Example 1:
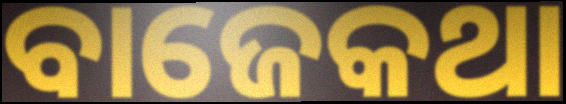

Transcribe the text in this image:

ବାଜେକଥା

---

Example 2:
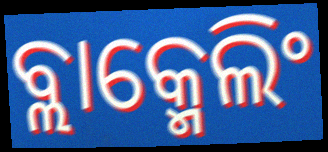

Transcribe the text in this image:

ବ୍ଲାକ୍ମେଲିଂ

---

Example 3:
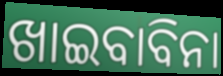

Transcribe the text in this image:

ଖାଇବାବିନା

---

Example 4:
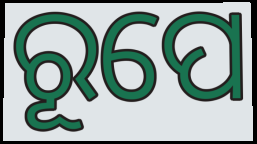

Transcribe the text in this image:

ରୂପେ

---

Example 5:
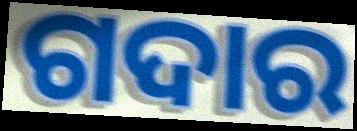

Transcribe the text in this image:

ଗଦାର